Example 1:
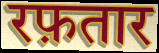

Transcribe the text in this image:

रफ़तार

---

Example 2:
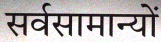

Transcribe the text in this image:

सर्वसामान्यों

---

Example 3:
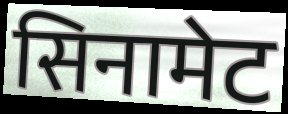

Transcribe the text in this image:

सिनामेट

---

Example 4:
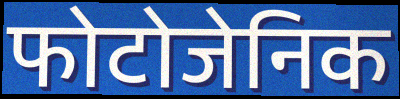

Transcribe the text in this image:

फोटोजेनिक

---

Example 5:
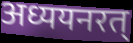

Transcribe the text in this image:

अध्ययनरत्